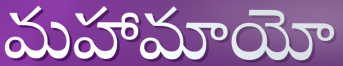
మహామాయో